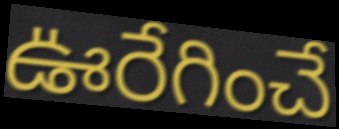
ఊరేగించే